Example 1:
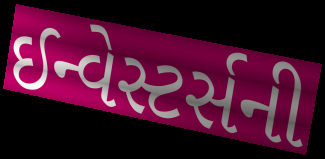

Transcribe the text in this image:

ઈન્વેસ્ટર્સની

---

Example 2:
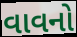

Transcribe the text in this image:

વાવનો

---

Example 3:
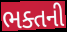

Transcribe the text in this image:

ભક્તની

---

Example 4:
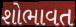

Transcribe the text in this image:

શોભાવત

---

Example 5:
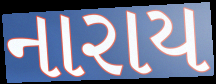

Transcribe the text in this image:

નારાય